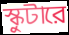
স্কুটারে